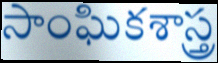
సాంఘికశాస్త్ర